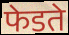
फेडते